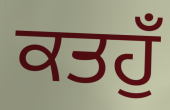
ਕਤਹੁਁ